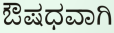
ಔಷಧವಾಗಿ